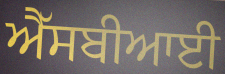
ਐੱਸਬੀਆਈ